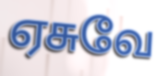
ஏசுவே